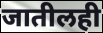
जातीलही